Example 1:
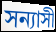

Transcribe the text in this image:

সন্যাসী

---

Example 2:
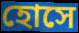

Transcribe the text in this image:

হোসে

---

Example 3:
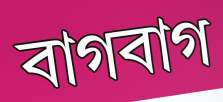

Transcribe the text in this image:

বাগবাগ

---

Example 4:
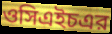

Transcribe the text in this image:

ওসিএইচএর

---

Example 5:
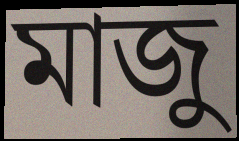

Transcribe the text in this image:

মাজু